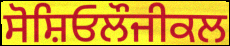
ਸੋਸ਼ਿਓਲੌਜੀਕਲ